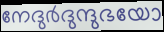
നേദുർദുന്ദുഭയോ